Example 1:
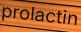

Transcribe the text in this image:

prolactin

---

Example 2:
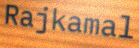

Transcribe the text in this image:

Rajkamal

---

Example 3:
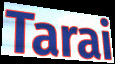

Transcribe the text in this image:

Tarai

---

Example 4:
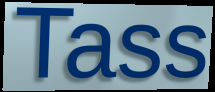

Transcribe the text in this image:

Tass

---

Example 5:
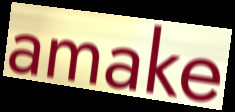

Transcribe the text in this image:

amake